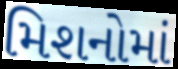
મિશનોમાં